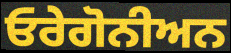
ਓਰੇਗੋਨੀਅਨ